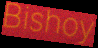
Bishoy